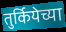
तुर्कियेच्या